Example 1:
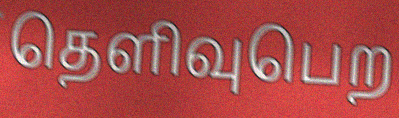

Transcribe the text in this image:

தெளிவுபெற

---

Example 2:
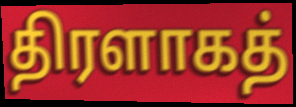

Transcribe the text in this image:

திரளாகத்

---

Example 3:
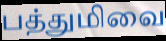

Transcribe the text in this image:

பத்துமிவை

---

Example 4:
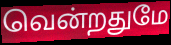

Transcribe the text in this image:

வென்றதுமே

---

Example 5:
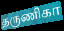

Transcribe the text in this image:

தருணிகா